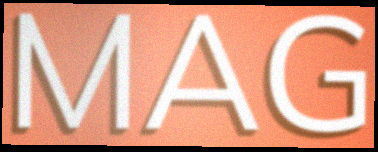
MAG